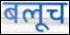
बलूच